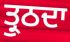
ਤ੍ਰੁਠਦਾ